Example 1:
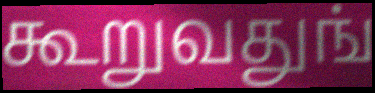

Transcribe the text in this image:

கூறுவதுங்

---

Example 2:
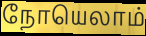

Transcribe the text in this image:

நோயெலாம்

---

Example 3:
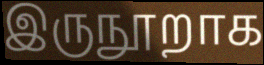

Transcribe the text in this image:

இருநூறாக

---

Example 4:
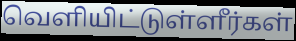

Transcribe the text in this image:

வெளியிட்டுள்ளீர்கள்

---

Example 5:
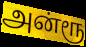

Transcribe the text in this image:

அன்ரூ